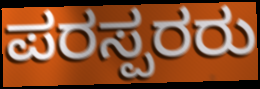
ಪರಸ್ಪರರು